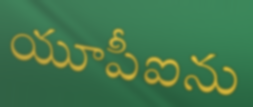
యూపీఐను